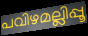
പവിഴമല്ലിപ്പൂ